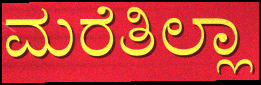
ಮರೆತಿಲ್ಲಾ